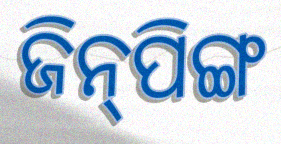
ଜିନ୍‌ପିଙ୍ଗ